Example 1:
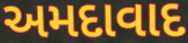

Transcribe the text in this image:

અમદાવાદ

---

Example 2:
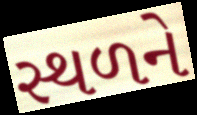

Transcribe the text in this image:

સ્થળને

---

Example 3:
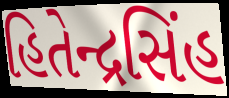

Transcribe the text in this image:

હિતેન્દ્રસિંહ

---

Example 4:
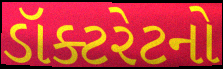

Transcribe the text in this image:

ડૉક્ટરેટનો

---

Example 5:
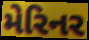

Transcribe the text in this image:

મેરિનર